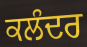
ਕਲੰਦਰ